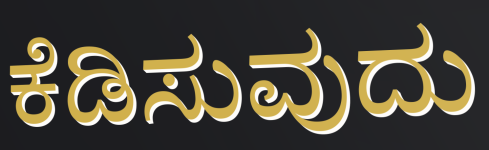
ಕೆಡಿಸುವುದು